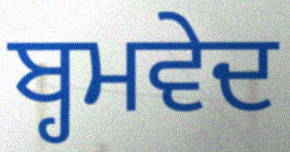
ਬ੍ਹਮਵੇਦ